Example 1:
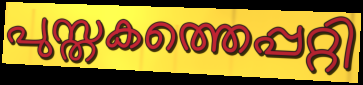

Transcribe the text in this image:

പുസ്തകത്തെപ്പറ്റി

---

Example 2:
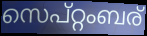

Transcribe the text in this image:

സെപ്റ്റംബര്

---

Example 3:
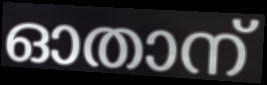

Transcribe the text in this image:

ഓതാന്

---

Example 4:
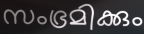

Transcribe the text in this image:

സംഭ്രമിക്കും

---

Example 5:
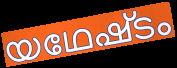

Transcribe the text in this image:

യഥേഷ്‌ടം